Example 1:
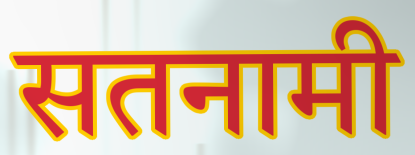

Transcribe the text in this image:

सतनामी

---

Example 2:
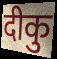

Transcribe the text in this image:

दीकु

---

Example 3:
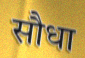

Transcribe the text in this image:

सौधा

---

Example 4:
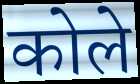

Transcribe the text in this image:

कोले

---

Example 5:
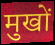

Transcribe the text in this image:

मुखों